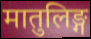
मातुलिङ्ग